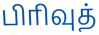
பிரிவுத்